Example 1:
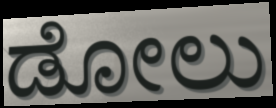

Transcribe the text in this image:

ಡೋಲು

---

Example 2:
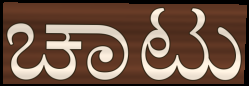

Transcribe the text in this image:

ಚಾಟು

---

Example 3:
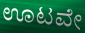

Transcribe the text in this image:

ಊಟವೇ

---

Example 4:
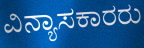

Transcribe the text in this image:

ವಿನ್ಯಾಸಕಾರರು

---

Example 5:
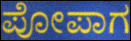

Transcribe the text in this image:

ಪೋಪಾಗ